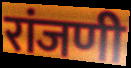
रांजणी